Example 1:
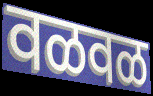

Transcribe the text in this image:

वळवळ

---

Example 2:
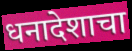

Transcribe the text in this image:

धनादेशाचा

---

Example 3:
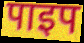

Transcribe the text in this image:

पाइप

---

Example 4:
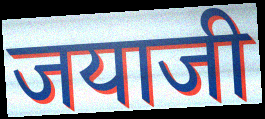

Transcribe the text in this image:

जयाजी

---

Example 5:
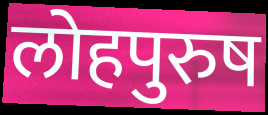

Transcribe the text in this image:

लोहपुरुष